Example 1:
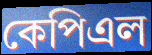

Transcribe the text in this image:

কেপিএল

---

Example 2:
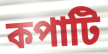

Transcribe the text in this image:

কপাটি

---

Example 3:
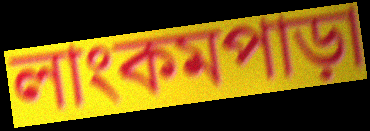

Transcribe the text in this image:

লাংকমপাড়া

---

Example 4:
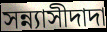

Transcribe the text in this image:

সন্ন্যাসীদাদা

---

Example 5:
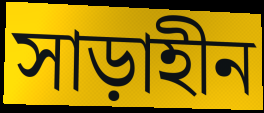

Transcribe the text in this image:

সাড়াহীন